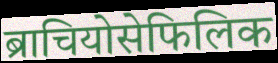
ब्राचियोसेफिलिक